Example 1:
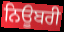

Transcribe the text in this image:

ਨਿਊਬਰੀ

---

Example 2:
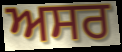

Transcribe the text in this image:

ਅਸਰ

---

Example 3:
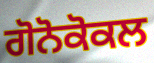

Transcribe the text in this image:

ਗੋਨੋਕੋਕਲ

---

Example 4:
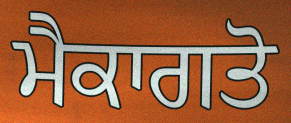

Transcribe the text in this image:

ਮੈਕਾਗਤੋ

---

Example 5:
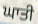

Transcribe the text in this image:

ਘਾਤੀ